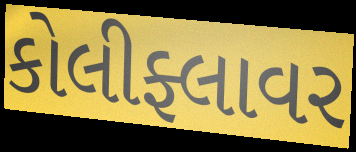
કોલીફ્લાવર